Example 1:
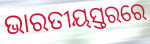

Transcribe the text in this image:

ଭାରତୀୟସ୍ତରରେ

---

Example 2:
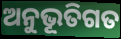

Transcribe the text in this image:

ଅନୁଭୂତିଗତ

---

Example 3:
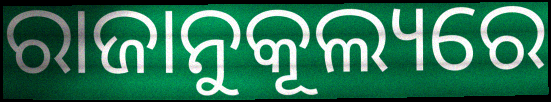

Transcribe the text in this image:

ରାଜାନୁକୂଲ୍ୟରେ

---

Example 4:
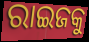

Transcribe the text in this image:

ରାଇଜକୁ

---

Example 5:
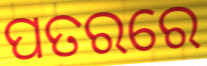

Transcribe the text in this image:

ପତରରେ